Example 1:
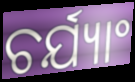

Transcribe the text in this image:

ଚର୍ଯ୍ୟାଂ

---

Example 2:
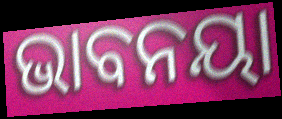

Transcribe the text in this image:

ଭାବନୟା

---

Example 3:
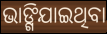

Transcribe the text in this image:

ଭାଙ୍ଗିଯାଇଥିବା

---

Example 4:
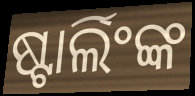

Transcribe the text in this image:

ଷ୍ଟାର୍ଲିଂଙ୍କ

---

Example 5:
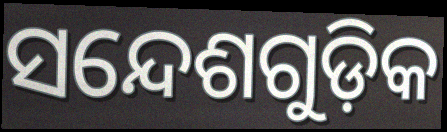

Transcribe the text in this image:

ସନ୍ଦେଶଗୁଡ଼ିକ